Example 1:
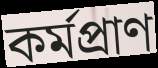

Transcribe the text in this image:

কর্মপ্রাণ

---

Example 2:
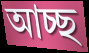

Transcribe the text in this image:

আচ্ছ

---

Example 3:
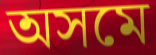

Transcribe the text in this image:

অসমে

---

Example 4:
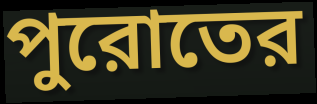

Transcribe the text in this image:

পুরোতের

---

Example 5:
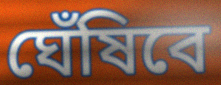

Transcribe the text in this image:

ঘেঁষিবে